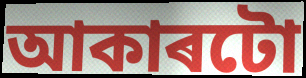
আকাৰটো